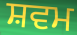
ਸ਼ਵਮ